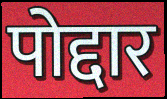
पोद्दार